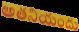
అతనియందు